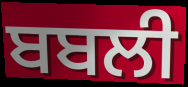
ਬਬਲੀ